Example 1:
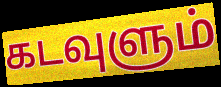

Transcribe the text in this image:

கடவுளும்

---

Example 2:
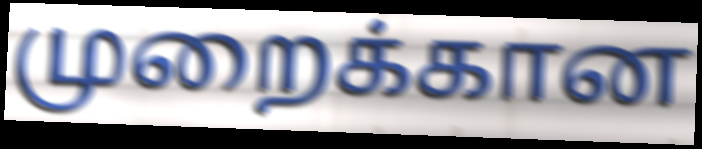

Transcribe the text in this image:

முறைக்கான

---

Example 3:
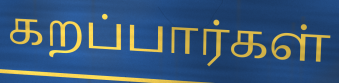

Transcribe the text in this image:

கறப்பார்கள்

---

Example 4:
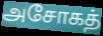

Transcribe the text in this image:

அசோகத்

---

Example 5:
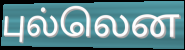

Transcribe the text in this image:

புல்லென